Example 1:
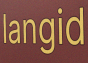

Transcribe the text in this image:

langid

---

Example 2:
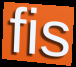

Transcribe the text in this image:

fis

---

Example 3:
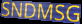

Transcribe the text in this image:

SNDMSG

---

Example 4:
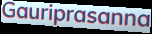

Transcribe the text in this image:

Gauriprasanna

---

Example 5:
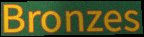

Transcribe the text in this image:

Bronzes